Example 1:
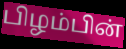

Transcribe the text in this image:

பிழம்பின்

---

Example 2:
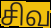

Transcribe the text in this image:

சிவ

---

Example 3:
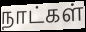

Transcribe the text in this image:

நாட்கள்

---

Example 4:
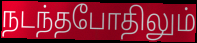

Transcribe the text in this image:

நடந்தபோதிலும்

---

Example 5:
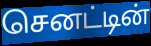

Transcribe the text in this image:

செனட்டின்